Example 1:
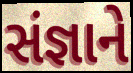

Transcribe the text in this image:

સંજ્ઞાને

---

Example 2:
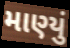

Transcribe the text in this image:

માણ્યું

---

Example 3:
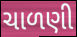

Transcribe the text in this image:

ચાળણી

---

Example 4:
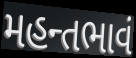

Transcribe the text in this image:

મહન્તભાવં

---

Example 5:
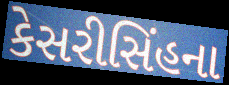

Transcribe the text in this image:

કેસરીસિંહના